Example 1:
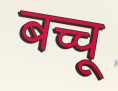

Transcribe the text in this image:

बच्चू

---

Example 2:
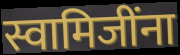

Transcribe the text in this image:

स्वामिजींना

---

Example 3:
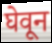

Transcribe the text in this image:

घेवून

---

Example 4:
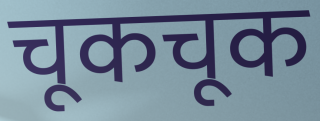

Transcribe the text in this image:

चूकचूक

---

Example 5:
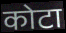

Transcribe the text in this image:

कोटा